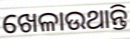
ଖେଳାଉଥାନ୍ତି